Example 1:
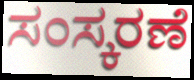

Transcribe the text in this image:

ಸಂಸ್ಕರಣೆ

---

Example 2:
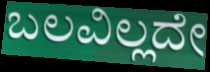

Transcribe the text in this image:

ಬಲವಿಲ್ಲದೇ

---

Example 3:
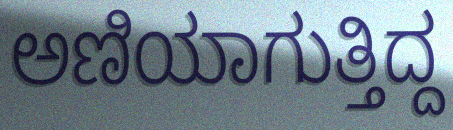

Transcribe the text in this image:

ಅಣಿಯಾಗುತ್ತಿದ್ದ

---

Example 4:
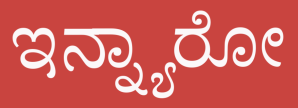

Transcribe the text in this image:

ಇನ್ನ್ಯಾರೋ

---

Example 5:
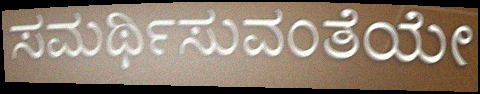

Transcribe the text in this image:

ಸಮರ್ಥಿಸುವಂತೆಯೇ